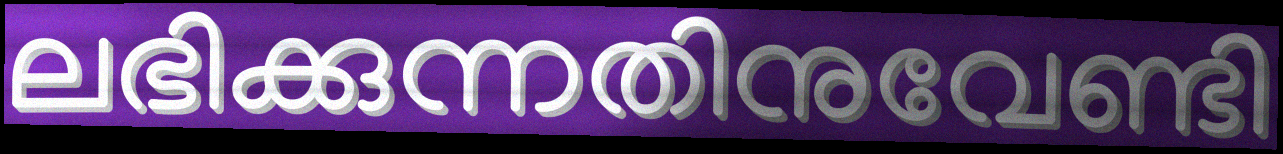
ലഭിക്കുന്നതിനുവേണ്ടി